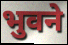
भुवने